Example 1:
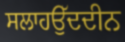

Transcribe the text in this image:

ਸਲਾਹਉੱਦਦੀਨ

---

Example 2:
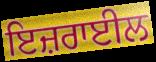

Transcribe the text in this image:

ਇਜ਼ਰਾਈਲ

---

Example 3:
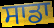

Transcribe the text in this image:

ਸਾਡਾ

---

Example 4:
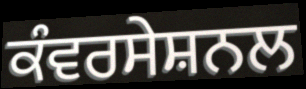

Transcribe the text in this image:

ਕੰਵਰਸੇਸ਼ਨਲ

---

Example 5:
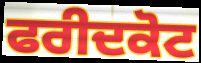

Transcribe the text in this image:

ਫਰੀਦਕੋਟ